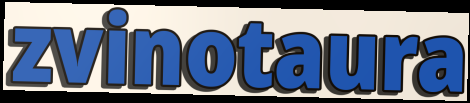
zvinotaura